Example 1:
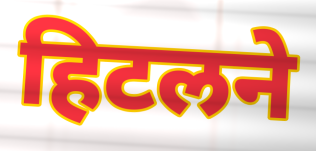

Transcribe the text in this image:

हिटलने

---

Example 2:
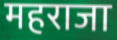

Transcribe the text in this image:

महराजा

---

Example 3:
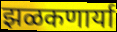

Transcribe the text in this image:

झळकणार्या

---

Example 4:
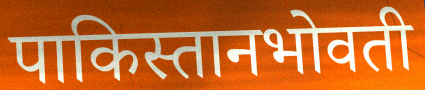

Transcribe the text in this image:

पाकिस्तानभोवती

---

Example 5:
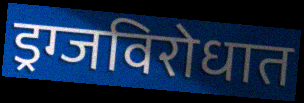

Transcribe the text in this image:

ड्रग्जविरोधात